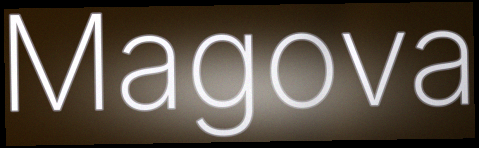
Magova